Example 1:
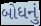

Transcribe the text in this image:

બોધનું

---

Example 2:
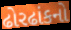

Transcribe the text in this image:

ઢોરઢાંકનો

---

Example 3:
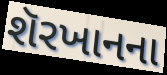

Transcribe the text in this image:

શૅરખાનના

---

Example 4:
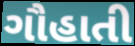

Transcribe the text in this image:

ગૌહાતી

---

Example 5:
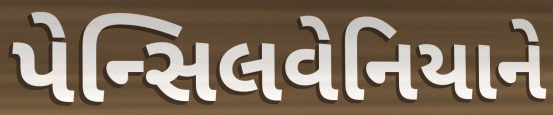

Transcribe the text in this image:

પેન્સિલવેનિયાને